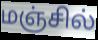
மஞ்சில்